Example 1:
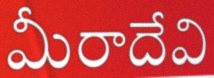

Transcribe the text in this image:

మీరాదేవి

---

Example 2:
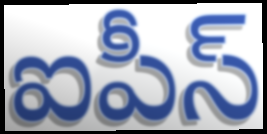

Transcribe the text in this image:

ఐపీస్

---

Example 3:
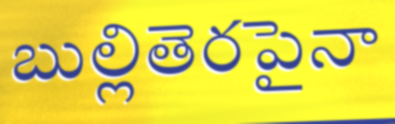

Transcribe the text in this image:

బుల్లితెరపైనా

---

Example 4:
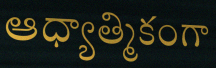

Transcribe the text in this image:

ఆధ్యాత్మికంగా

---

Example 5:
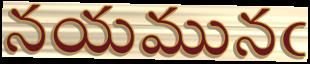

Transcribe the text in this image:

నయమునఁ